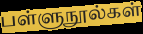
பள்ளுநூல்கள்